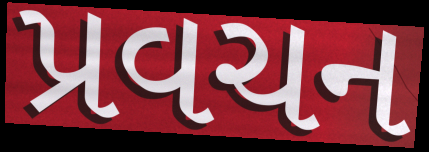
પ્રવચન